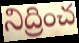
నిద్రించ